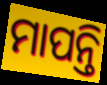
ମାପନ୍ତି